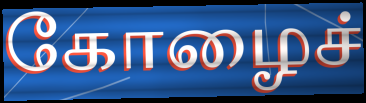
கோழைச்